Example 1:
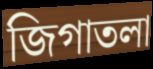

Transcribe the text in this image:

জিগাতলা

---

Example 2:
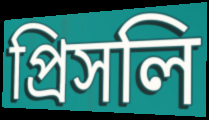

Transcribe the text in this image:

প্রিসলি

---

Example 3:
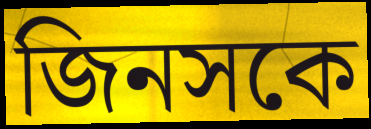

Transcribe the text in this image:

জিনসকে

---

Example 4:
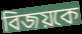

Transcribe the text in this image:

বিজয়কে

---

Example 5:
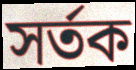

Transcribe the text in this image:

সর্তক